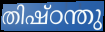
തിഷ്ഠന്തു